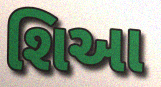
શિઆ